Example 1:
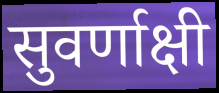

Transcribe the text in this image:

सुवर्णाक्षी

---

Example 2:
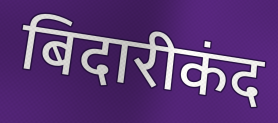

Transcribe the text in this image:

बिदारीकंद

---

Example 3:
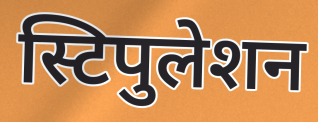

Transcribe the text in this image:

स्टिपुलेशन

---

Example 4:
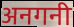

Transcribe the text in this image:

अनगनी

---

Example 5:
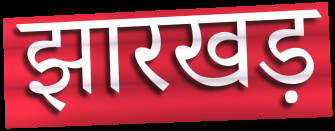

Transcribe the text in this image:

झारखड़